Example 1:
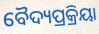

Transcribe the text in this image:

ବୈଦ୍ୟପ୍ରକ୍ରିୟା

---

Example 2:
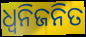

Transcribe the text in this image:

ଧ୍ଵନିଜନିତ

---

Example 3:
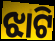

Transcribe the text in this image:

ଝାଟି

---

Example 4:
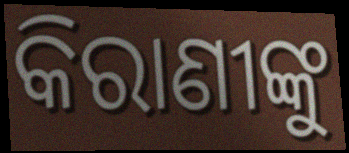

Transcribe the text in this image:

କିରାଣୀଙ୍କୁ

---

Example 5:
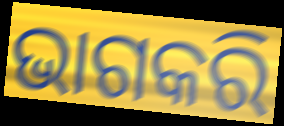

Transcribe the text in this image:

ଭାଗକରି